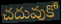
చదువుకో